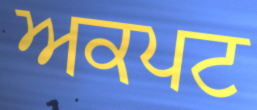
ਅਕਪਟ